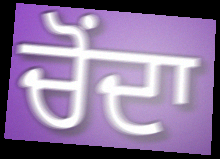
ਚੋਂਦਾ